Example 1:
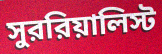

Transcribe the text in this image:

সুররিয়ালিস্ট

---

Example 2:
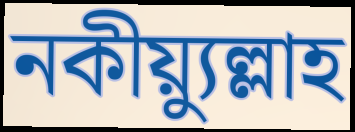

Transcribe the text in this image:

নকীয়্যুল্লাহ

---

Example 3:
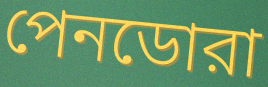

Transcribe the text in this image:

পেনডোরা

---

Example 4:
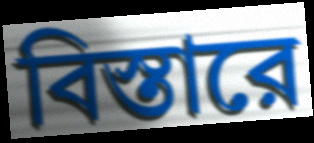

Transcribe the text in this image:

বিস্তারে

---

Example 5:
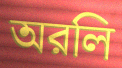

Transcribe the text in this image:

অরলি